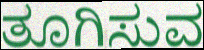
ತೂಗಿಸುವ